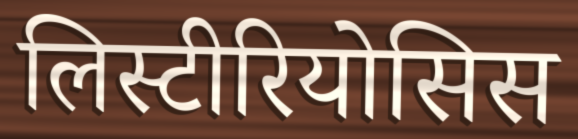
लिस्टीरियोसिस